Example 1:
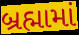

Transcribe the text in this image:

બ્રહ્મામાં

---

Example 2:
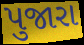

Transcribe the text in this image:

પુજારા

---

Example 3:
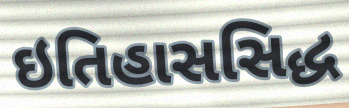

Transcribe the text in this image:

ઇતિહાસસિદ્ધ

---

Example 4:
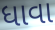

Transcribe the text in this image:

ધાવા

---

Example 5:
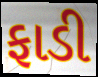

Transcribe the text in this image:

ફાડી